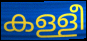
കള്ളീ